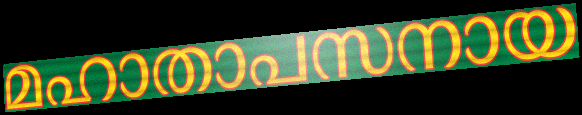
മഹാതാപസനായ